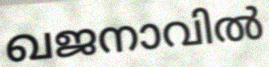
ഖജനാവിൽ